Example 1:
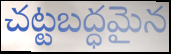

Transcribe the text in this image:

చట్టబద్ధమైన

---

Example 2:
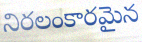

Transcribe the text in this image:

నిరలంకారమైన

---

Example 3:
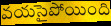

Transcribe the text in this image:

వయసైపోయింది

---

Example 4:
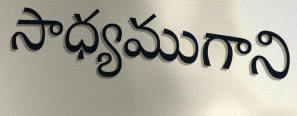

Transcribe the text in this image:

సాధ్యముగాని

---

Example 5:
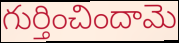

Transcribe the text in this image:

గుర్తించిందామె